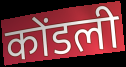
कोंडली